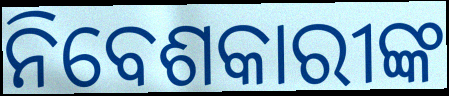
ନିବେଶକାରୀଙ୍କ